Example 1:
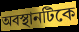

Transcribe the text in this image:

অবস্থানটিকে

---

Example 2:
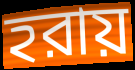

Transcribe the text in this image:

হরায়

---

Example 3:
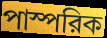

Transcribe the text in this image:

পাস্পরিক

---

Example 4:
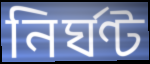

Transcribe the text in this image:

নির্ঘণ্ট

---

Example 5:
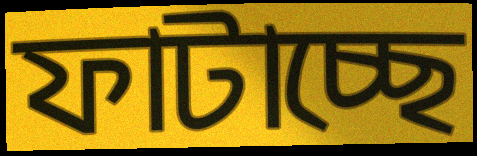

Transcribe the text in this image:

ফাটাচ্ছে